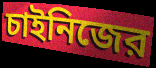
চাইনিজের